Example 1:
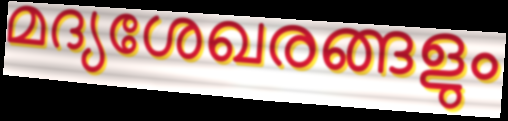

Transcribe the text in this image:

മദ്യശേഖരങ്ങളും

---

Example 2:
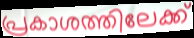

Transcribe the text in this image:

പ്രകാശത്തിലേക്ക്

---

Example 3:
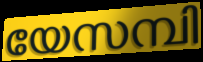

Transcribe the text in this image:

യേസമ്പി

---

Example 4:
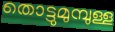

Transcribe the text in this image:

തൊട്ടുമുമ്പുള്ള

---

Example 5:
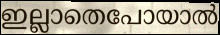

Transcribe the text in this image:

ഇല്ലാതെപോയാൽ